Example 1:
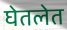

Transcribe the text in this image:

घेतलेत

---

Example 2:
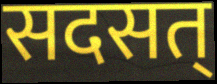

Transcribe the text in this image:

सदसत्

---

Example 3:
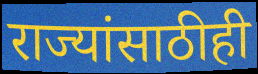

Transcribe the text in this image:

राज्यांसाठीही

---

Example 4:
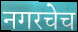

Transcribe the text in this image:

नगरचेच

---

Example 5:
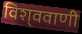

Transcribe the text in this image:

विश्ववाणी